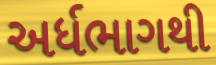
અર્ધભાગથી